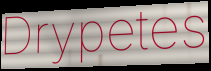
Drypetes